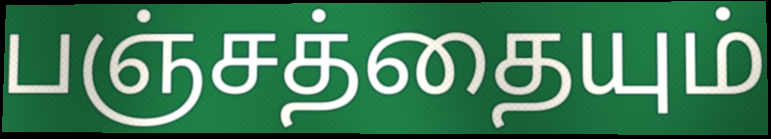
பஞ்சத்தையும்